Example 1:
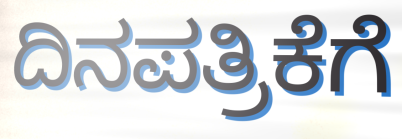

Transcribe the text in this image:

ದಿನಪತ್ರಿಕೆಗೆ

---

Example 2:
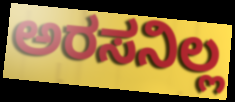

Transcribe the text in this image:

ಅರಸನಿಲ್ಲ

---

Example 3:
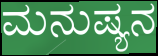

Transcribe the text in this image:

ಮನುಷ್ಯನ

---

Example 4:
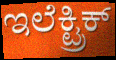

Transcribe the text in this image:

ಇಲೆಕ್ಟ್ರಿಕ್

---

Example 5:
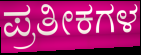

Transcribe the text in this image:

ಪ್ರತೀಕಗಳ